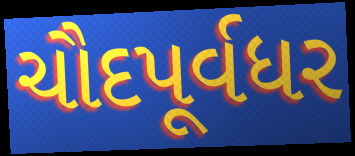
ચૌદપૂર્વધર